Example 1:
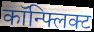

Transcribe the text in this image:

कॉन्फ्लिक्ट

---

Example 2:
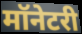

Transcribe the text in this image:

मॉनेटरी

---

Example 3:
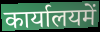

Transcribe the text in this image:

कार्यालयमें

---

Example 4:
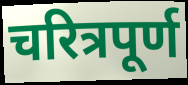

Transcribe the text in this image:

चरित्रपूर्ण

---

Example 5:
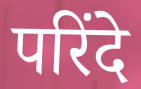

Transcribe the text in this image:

परिंदे